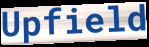
Upfield